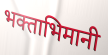
भक्ताभिमानी